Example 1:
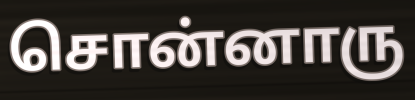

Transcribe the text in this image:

சொன்னாரு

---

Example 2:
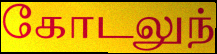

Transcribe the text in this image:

கோடலுந்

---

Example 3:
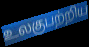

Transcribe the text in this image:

உலகுபற்றிய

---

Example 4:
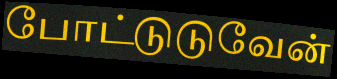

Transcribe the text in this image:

போட்டுடுவேன்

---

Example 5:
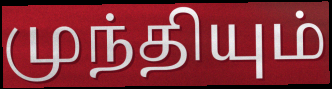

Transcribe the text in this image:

முந்தியும்